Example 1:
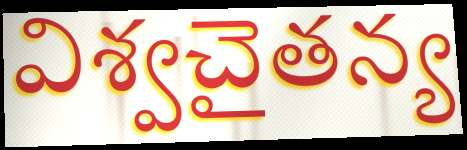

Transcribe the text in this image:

విశ్వచైతన్య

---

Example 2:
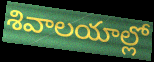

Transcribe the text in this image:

శివాలయాల్లో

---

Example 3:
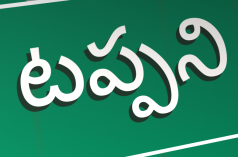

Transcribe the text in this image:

టప్పని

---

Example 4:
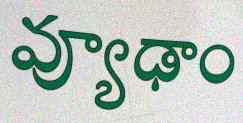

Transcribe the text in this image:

వ్యూఢాం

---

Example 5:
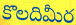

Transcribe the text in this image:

కొలదిమీర